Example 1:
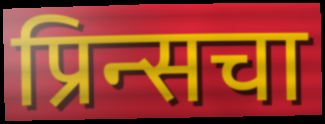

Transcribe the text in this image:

प्रिन्सचा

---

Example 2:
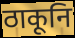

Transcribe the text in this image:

ठाकूनि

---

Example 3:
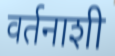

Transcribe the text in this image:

वर्तनाशी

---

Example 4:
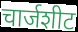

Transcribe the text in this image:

चार्जशीट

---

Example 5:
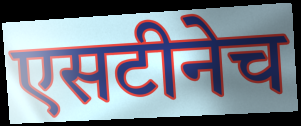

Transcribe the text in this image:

एसटीनेच